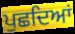
ਪੁਛਦਿਆਂ